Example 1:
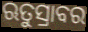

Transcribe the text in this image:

ଋତୁସ୍ରାବର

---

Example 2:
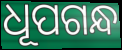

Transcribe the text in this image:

ଧୂପଗନ୍ଧ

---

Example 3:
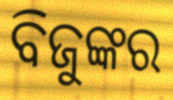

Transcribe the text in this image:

ବିଜୁଙ୍କର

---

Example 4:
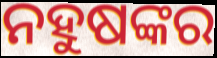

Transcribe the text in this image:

ନହୁଷଙ୍କର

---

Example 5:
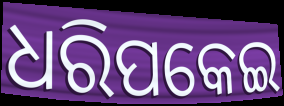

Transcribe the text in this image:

ଧରିପକେଇ